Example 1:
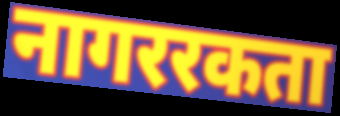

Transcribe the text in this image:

नागररकता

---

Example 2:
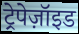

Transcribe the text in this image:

ट्रेपेज़ॉइड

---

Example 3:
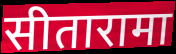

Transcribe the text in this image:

सीतारामा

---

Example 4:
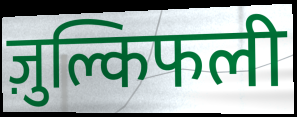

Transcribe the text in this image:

ज़ुल्किफली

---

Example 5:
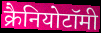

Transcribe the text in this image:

क्रैनियोटॉमी